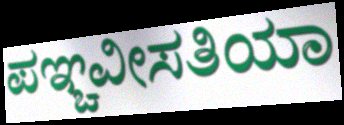
ಪಞ್ಚವೀಸತಿಯಾ